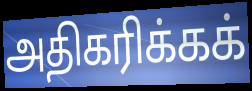
அதிகரிக்கக்